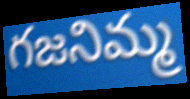
గజనిమ్మ